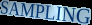
SAMPLING